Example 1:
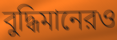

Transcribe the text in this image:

বুদ্ধিমানেরও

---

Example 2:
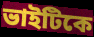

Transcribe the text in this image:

ভাইটিকে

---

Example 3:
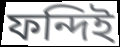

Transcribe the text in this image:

ফন্দিই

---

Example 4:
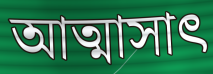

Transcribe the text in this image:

আত্মাসাৎ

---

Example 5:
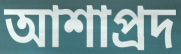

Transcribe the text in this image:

আশাপ্রদ